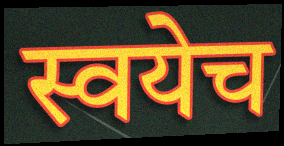
स्वयेच